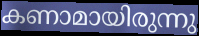
കണാമായിരുന്നു